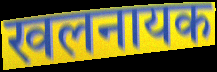
खलनायक